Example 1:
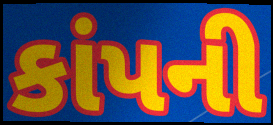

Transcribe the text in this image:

કાંપની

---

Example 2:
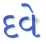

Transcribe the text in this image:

દવે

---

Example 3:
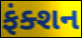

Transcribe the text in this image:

ફંક્શન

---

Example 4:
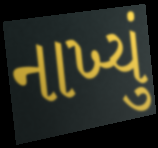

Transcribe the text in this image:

નાખ્યું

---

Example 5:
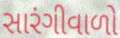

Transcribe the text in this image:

સારંગીવાળો